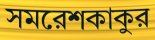
সমরেশকাকুর